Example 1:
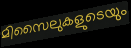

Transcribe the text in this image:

മിസൈലുകളുടെയും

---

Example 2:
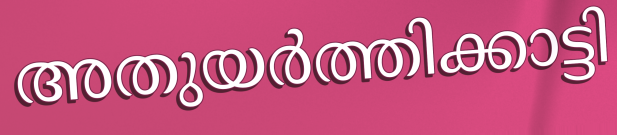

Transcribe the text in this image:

അതുയർത്തിക്കാട്ടി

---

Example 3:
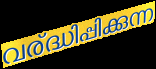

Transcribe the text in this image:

വര്ദ്ധിപ്പിക്കുന്ന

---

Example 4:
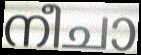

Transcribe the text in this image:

നീചാ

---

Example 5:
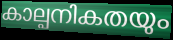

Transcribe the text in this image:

കാല്പനികതയും